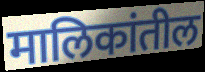
मालिकांतील